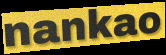
nankao